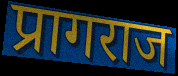
प्रागराज